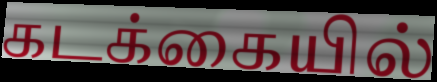
கடக்கையில்